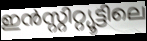
ഇൻസ്റ്റിറ്റ്യൂട്ടിലെ